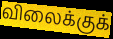
விலைக்குக்